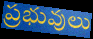
ప్రభువులు